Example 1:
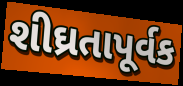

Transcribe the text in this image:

શીઘ્રતાપૂર્વક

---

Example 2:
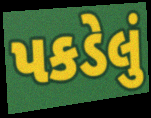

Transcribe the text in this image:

પકડેલું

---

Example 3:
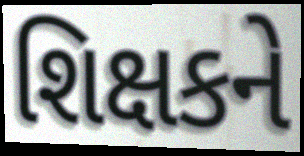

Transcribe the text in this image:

શિક્ષકને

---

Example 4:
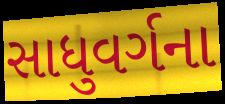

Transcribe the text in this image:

સાધુવર્ગના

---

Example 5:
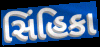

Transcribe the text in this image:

સિંહિકા